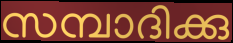
സമ്പാദിക്കു